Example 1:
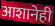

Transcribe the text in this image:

आशानेही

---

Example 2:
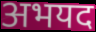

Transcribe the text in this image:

अभयद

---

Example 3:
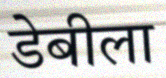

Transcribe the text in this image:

डेबीला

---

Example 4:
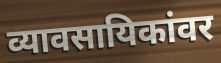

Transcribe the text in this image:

व्यावसायिकांवर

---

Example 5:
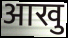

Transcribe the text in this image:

आखु